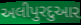
અલીપુરદુઆર